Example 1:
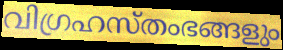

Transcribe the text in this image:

വിഗ്രഹസ്തംഭങ്ങളും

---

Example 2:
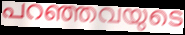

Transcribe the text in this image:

പറഞ്ഞവയുടെ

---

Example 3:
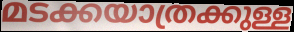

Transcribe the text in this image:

മടക്കയാത്രക്കുള്ള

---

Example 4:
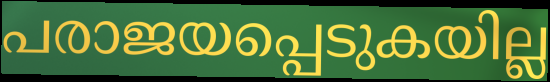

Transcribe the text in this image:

പരാജയപ്പെടുകയില്ല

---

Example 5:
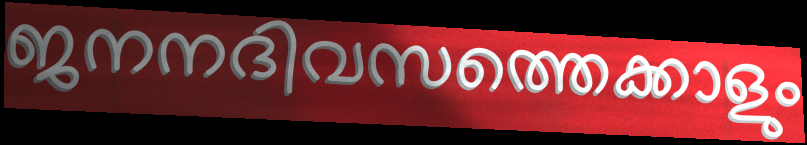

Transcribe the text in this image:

ജനനദിവസത്തെക്കാളും